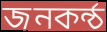
জনকন্ঠ